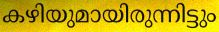
കഴിയുമായിരുന്നിട്ടും